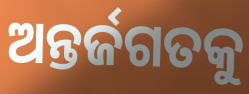
ଅନ୍ତର୍ଜଗତକୁ